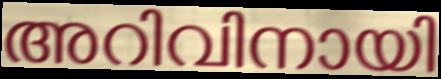
അറിവിനായി